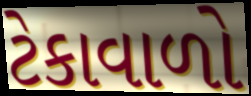
ટેકાવાળો